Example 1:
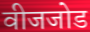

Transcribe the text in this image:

वीजजोड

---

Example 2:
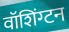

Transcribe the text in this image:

वॉशिंग्टन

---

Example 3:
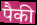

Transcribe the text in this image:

पैकी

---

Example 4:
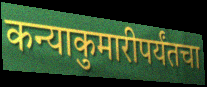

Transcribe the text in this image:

कन्याकुमारीपर्यंतचा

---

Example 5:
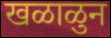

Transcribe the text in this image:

खळाळुन